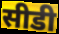
सीडी